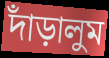
দাঁড়ালুম